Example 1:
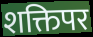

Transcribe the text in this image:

शक्तिपर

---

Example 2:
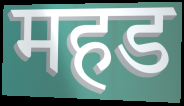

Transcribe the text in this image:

महड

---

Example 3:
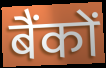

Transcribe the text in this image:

बैंकों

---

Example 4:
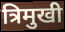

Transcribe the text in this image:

त्रिमुखी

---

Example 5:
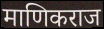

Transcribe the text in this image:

माणिकराज